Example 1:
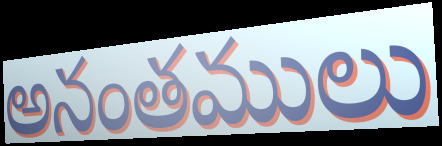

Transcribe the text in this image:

అనంతములు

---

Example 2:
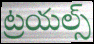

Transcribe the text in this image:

ట్రయల్స్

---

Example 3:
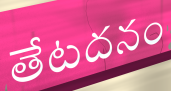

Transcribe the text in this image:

తేటదనం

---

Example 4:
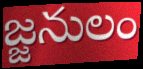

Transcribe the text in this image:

జ్జనులం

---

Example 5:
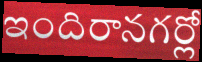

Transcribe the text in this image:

ఇందిరానగర్లో